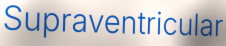
Supraventricular